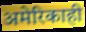
अमेरिकाही